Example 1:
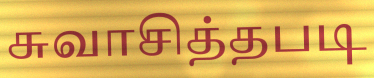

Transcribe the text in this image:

சுவாசித்தபடி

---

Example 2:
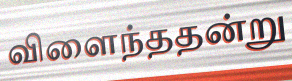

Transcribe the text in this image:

விளைந்ததன்று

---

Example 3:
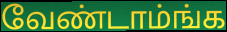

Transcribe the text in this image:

வேண்டாம்ங்க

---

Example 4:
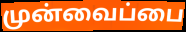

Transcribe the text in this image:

முன்வைப்பை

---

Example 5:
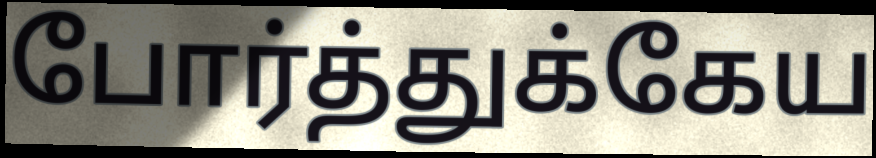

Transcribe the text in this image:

போர்த்துக்கேய